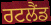
ਰਟਲੈਂਡ